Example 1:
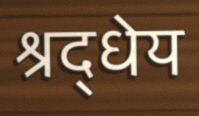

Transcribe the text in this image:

श्रद्धेय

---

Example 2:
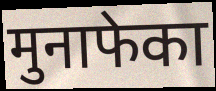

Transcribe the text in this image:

मुनाफेका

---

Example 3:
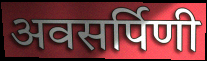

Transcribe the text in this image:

अवसर्पिणी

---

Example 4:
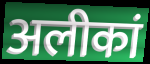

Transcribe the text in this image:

अलीकां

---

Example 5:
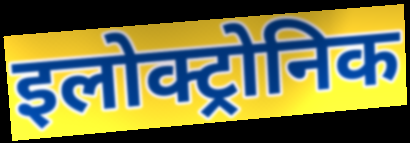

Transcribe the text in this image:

इलोक्ट्रोनिक